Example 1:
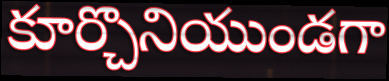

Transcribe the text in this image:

కూర్చొనియుండగా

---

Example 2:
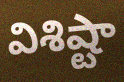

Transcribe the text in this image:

విశిష్టా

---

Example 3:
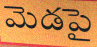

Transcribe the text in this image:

మెడపై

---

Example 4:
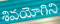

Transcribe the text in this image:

శివయోగిని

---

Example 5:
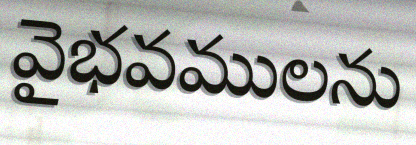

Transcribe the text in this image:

వైభవములను